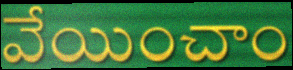
వేయించాం